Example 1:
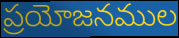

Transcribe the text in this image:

ప్రయోజనముల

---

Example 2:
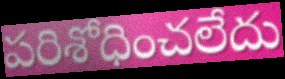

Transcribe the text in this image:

పరిశోధించలేదు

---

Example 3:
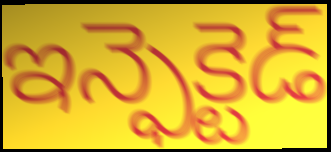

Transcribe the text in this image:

ఇన్ఫెక్టెడ్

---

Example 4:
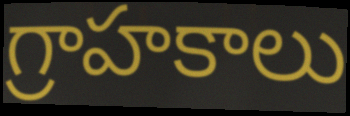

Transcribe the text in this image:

గ్రాహకాలు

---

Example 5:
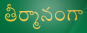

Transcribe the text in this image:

తీర్మానంగా